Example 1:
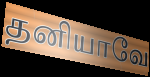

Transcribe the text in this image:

தனியாவே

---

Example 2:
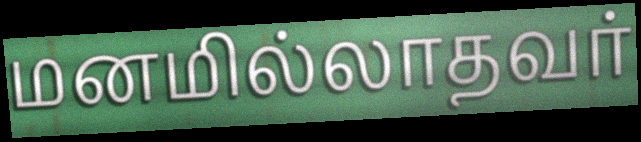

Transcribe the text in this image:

மனமில்லாதவர்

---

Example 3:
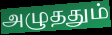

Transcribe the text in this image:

அழுததும்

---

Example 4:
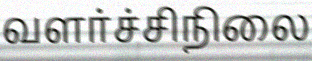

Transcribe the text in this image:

வளர்ச்சிநிலை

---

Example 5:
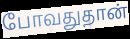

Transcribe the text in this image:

போவதுதான்